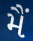
મૈં